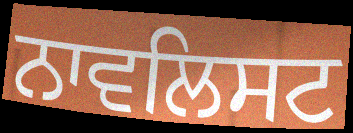
ਨਾਵਲਿਸਟ